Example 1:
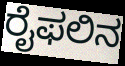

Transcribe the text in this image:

ರೈಫಲಿನ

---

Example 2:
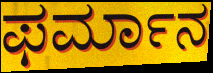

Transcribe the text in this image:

ಫರ್ಮಾನ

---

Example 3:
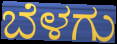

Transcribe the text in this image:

ಬೆಳಗು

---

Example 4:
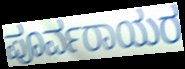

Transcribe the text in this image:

ಪೂರ್ವರಾಯರ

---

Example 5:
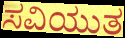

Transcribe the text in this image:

ಸವಿಯುತ